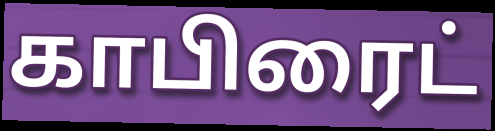
காபிரைட்